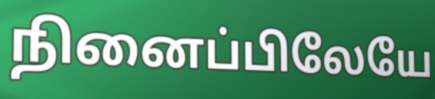
நினைப்பிலேயே